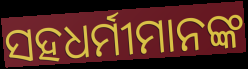
ସହଧର୍ମୀମାନଙ୍କ